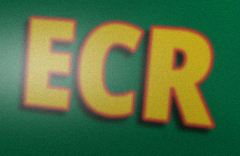
ECR